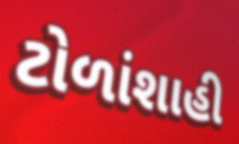
ટોળાંશાહી